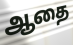
ஆதை